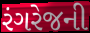
રંગરેજની